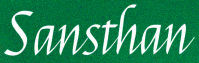
Sansthan